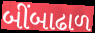
બીંબાઢાળ